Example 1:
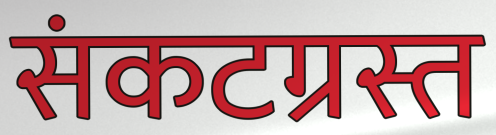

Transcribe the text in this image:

संकटग्रस्त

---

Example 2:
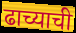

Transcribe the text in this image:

ढाच्याची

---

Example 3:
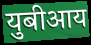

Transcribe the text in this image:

युबीआय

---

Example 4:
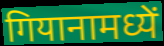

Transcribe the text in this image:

गियानामध्यें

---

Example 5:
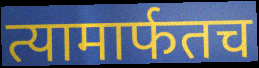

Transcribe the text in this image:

त्यामार्फतच